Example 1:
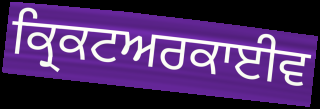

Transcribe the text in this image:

ਕ੍ਰਿਕਟਅਰਕਾਈਵ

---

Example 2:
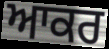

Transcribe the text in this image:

ਆਕਰ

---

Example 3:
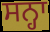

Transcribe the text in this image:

ਸਨ੍ਹਾ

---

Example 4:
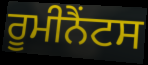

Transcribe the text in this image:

ਰੂਮੀਨੈਂਟਸ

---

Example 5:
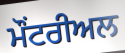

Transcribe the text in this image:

ਮੌਂਟਰੀਅਲ